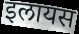
इलायस